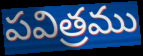
పవిత్రము